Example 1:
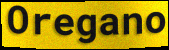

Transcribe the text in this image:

Oregano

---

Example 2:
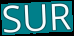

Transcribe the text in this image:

SUR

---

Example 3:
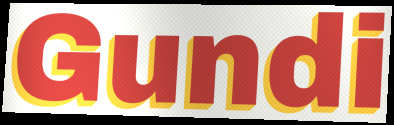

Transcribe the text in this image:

Gundi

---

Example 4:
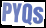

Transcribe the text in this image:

PYQs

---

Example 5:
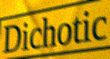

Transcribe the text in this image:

Dichotic